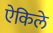
ऐकिले